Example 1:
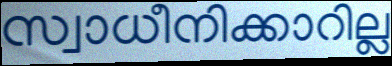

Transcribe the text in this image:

സ്വാധീനിക്കാറില്ല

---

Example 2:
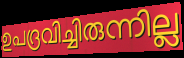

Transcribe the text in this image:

ഉപദ്രവിച്ചിരുന്നില്ല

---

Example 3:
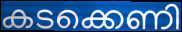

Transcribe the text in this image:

കടക്കെണി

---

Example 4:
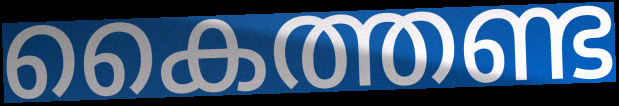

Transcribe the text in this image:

കൈത്തണ്ട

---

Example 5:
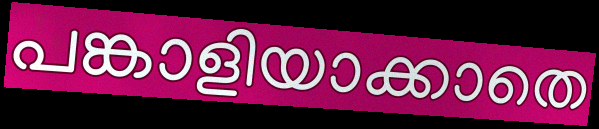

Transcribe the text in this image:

പങ്കാളിയാക്കാതെ